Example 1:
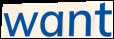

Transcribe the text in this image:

want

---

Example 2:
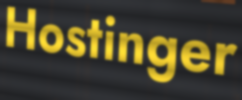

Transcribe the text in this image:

Hostinger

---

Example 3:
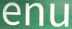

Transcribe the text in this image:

enu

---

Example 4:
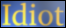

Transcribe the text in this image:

Idiot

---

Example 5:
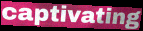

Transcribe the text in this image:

captivating